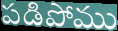
పడిపోము